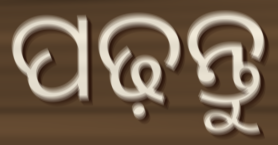
ପଢ଼ନ୍ତୁ